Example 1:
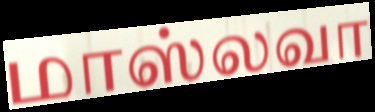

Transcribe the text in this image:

மாஸ்லவா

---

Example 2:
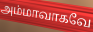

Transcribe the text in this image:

அம்மாவாகவே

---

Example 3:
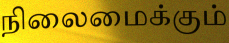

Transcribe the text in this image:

நிலைமைக்கும்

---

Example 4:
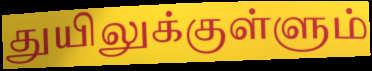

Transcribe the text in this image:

துயிலுக்குள்ளும்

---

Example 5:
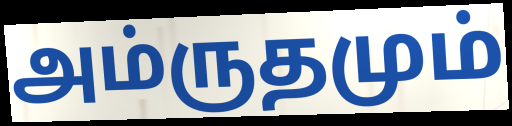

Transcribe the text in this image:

அம்ருதமும்